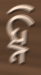
ହ୍ନି